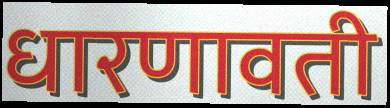
धारणावती